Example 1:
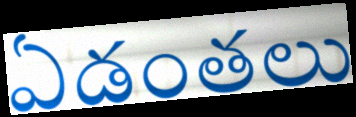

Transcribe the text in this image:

ఏడంతలు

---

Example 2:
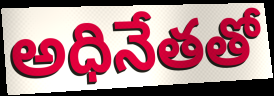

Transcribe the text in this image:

అధినేతతో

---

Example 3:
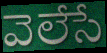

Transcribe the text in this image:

వెలేసే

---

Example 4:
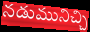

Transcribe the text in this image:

నడుమునిచ్చి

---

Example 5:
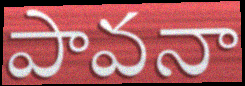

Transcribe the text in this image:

పావనా